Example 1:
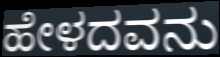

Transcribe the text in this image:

ಹೇಳದವನು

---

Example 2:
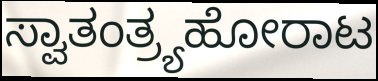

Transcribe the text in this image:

ಸ್ವಾತಂತ್ರ್ಯಹೋರಾಟ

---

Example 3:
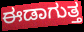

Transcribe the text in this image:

ಈಡಾಗುತ್ತ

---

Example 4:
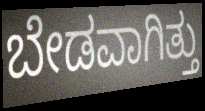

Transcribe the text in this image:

ಬೇಡವಾಗಿತ್ತು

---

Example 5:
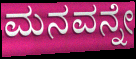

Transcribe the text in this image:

ಮನವನ್ನೇ